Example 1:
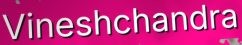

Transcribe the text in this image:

Vineshchandra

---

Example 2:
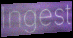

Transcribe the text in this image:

Ingest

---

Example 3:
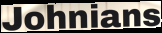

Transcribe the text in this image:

Johnians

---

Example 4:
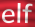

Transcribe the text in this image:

elf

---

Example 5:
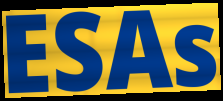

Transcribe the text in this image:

ESAs